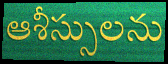
ఆశీస్సులను